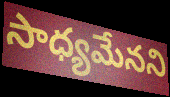
సాధ్యమేనని